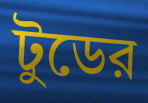
টুডের